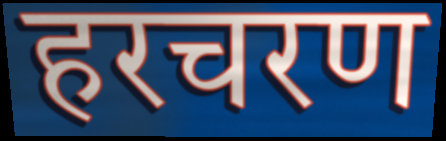
हरचरण